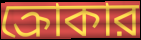
ক্রোকার